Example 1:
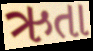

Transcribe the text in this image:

ઋતા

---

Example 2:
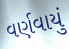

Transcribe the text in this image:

વર્ણવાયું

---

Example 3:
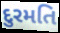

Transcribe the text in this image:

દુરમતિ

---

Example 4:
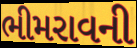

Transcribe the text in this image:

ભીમરાવની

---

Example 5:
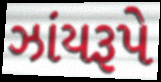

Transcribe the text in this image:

ઝાંયરૂપે